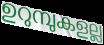
ഉറുമ്പുകളല്ല